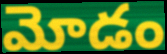
మోడం